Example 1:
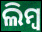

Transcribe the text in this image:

ଲିମ୍ବ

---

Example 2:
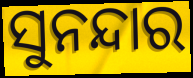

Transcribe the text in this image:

ସୁନନ୍ଦାର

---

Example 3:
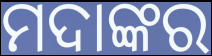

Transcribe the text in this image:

ମଦାଙ୍କର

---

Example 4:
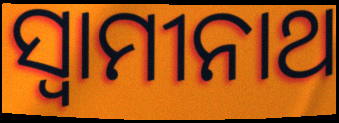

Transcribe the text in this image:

ସ୍ୱାମୀନାଥ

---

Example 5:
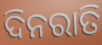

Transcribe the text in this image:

ଦିନରାତି